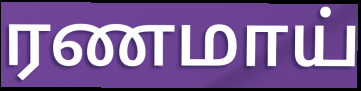
ரணமாய்